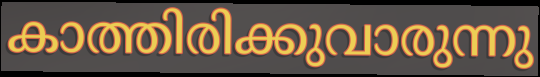
കാത്തിരിക്കുവാരുന്നു